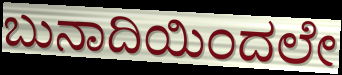
ಬುನಾದಿಯಿಂದಲೇ